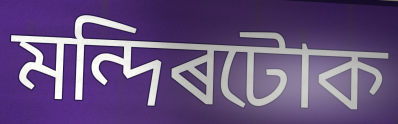
মন্দিৰটোক